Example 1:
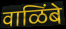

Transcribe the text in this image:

वाळिंबे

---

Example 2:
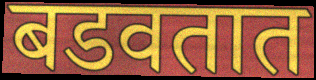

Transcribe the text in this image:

बडवतात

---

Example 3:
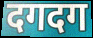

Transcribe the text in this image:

दगदग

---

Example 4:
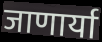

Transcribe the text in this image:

जाणार्या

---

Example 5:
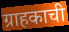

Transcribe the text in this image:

ग्राहकाची